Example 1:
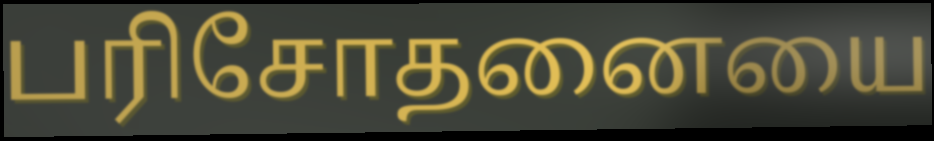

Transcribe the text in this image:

பரிசோதனையை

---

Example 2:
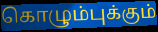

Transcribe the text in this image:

கொழும்புக்கும்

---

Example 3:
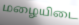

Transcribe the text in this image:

மழையிடை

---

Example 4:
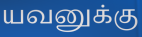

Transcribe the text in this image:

யவனுக்கு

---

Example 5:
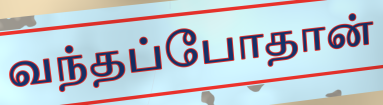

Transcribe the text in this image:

வந்தப்போதான்